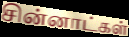
சின்னாட்கள்